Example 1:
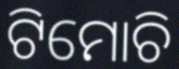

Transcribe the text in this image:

ଟିମୋଚି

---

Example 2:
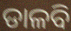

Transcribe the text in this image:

ଡାଳବି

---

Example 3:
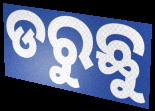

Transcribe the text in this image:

ଡରୁଛୁ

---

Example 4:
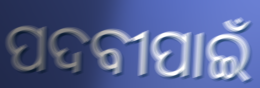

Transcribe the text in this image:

ପଦବୀପାଇଁ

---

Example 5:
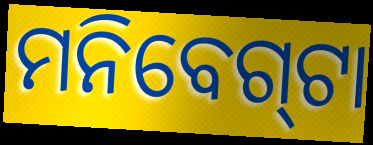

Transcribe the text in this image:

ମନିବେଗ୍‍ଟା